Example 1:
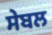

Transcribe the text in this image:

ਸੇਬਲ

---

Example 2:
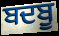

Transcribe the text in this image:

ਬਦਬੂ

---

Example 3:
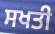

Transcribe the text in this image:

ਸਖਤੀ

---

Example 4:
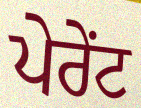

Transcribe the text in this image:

ਪੇਰੇਂਟ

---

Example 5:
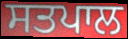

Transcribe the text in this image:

ਸਤਪਾਲ